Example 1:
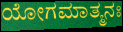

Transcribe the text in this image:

ಯೋಗಮಾತ್ಮನಃ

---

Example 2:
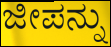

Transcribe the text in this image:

ಜೀಪನ್ನು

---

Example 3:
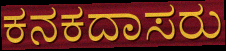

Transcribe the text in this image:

ಕನಕದಾಸರು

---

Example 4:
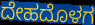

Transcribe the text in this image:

ದೇಹದೊಳಗ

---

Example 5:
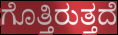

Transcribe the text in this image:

ಗೊತ್ತಿರುತ್ತದೆ